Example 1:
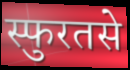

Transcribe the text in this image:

स्फुरतसे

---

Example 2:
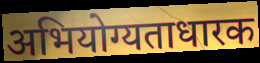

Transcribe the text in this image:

अभियोग्यताधारक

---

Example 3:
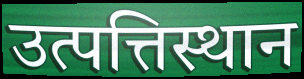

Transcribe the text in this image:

उत्पत्तिस्थान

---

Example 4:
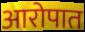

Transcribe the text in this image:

आरोपात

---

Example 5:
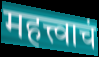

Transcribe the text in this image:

महत्त्वाचं